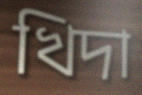
খিদা